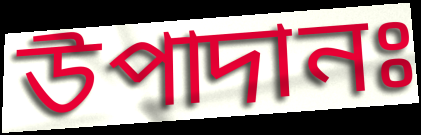
উপাদানঃ